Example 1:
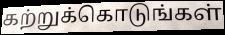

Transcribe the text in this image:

கற்றுக்கொடுங்கள்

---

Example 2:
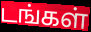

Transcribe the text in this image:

டங்கள்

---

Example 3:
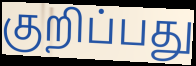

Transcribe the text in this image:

குறிப்பது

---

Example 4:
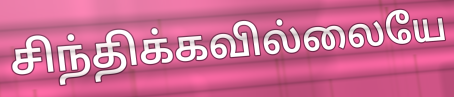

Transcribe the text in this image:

சிந்திக்கவில்லையே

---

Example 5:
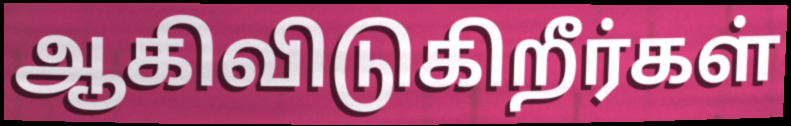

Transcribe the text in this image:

ஆகிவிடுகிறீர்கள்